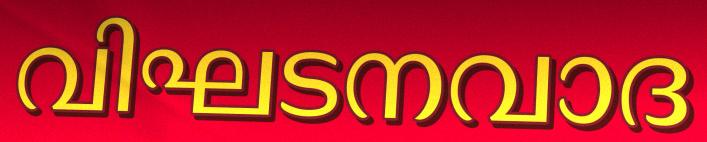
വിഘടനവാദ